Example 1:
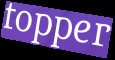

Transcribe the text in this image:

topper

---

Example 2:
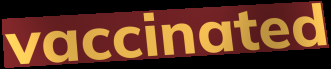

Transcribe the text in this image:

vaccinated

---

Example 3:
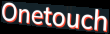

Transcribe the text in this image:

Onetouch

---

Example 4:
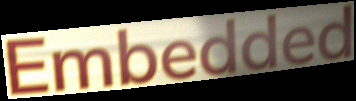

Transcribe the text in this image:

Embedded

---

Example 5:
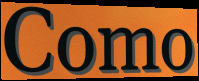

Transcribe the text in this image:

Como